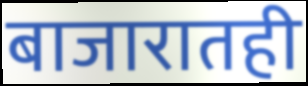
बाजारातही